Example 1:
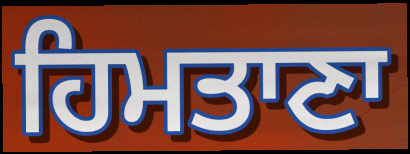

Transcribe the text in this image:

ਹਿਮਤਾਣਾ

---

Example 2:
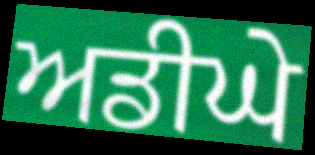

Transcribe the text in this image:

ਅਡੀਘੇ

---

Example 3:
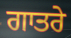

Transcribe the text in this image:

ਗਾਤਰੇ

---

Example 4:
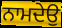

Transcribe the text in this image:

ਨਾਮਦੇਉ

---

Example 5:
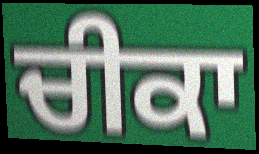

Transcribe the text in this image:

ਚੀਕਾ